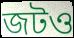
জটও